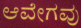
ಆವೇಗವು